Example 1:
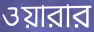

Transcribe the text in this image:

ওয়ারার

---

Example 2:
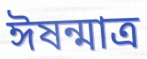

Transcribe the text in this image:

ঈষন্মাত্র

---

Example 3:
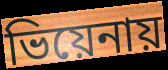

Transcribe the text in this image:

ভিয়েনায়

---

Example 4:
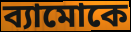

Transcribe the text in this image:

ব্যামোকে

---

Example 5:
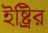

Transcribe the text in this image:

ইষ্ট্রির